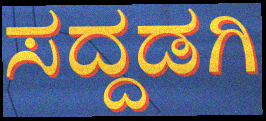
ಸದ್ದಡಗಿ